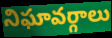
నిఘావర్గాలు